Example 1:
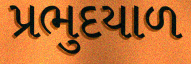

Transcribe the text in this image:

પ્રભુદયાળ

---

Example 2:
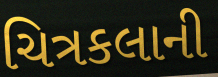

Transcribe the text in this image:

ચિત્રકલાની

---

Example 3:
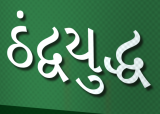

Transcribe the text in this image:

ઠંદ્વયુદ્ધ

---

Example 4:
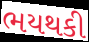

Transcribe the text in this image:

ભયથકી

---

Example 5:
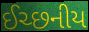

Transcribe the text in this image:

ઈચ્છનીય